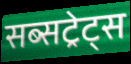
सब्सट्रेट्स